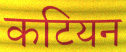
कटियन